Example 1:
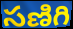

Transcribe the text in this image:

సణిగి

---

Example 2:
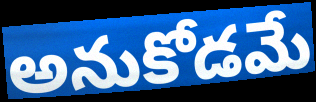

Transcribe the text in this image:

అనుకోడమే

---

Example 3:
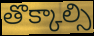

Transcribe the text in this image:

తొక్కాల్సి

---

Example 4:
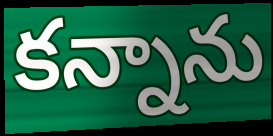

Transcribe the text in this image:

కన్నాను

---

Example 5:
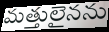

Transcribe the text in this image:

మత్తులైనను